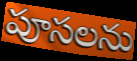
పూసలను